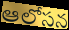
ఆలోసన